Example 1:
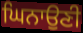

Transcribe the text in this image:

ਘਿਨਾਉਣੀ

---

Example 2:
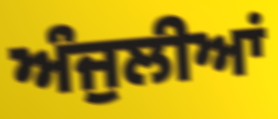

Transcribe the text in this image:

ਅੰਜੁਲੀਆਂ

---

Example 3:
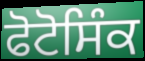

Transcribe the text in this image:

ਫੋਟੋਸਿੰਕ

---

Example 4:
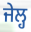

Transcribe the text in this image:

ਜੇਲ੍ਹ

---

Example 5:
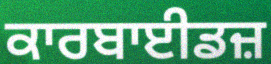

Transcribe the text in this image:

ਕਾਰਬਾਈਡਜ਼